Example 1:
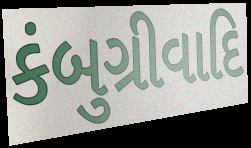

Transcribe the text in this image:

કંબુગ્રીવાદિ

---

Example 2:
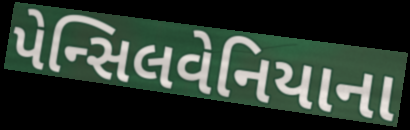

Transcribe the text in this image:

પેન્સિલવેનિયાના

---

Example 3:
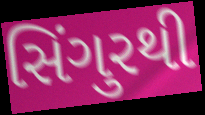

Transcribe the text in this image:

સિંગુરથી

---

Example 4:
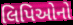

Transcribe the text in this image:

લિપિઓનો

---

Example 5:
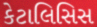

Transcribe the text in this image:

કેટાલિસિસ